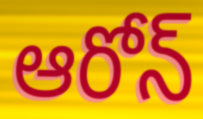
ఆరోన్